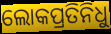
ଲୋକପ୍ରତିନିଧୁ